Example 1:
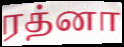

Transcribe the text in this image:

ரத்னா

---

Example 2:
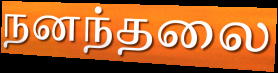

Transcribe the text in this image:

நனந்தலை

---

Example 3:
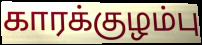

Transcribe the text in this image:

காரக்குழம்பு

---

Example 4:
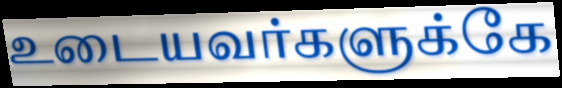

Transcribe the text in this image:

உடையவர்களுக்கே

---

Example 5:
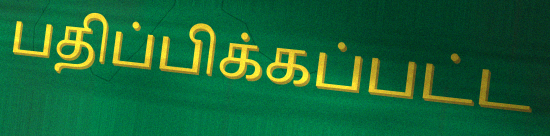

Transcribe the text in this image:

பதிப்பிக்கப்பட்ட